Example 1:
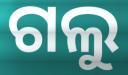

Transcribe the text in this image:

ଗଲୁ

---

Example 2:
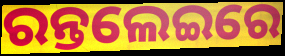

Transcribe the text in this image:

ରନ୍ତଲେଇରେ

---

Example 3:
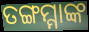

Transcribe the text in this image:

ତଙ୍ଗମ୍ମାଙ୍କ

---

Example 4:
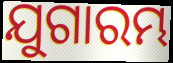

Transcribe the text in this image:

ଯୁଗାରମ୍ଭ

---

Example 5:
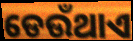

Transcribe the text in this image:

ଡେଉଁଥାଏ